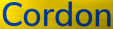
Cordon